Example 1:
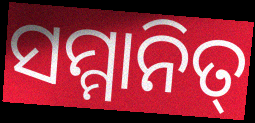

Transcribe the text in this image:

ସମ୍ମାନିତ୍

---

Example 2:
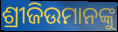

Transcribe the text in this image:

ଶ୍ରୀଜିଉମାନଙ୍କୁ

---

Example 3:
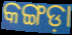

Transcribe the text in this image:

କଙ୍ଗଡ଼ା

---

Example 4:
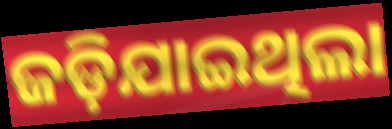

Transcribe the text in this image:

ଜଡ଼ିଯାଇଥିଲା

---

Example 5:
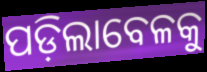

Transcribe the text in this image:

ପଡ଼ିଲାବେଳକୁ